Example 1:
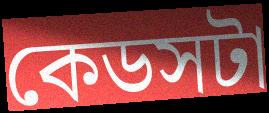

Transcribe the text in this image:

কেডসটা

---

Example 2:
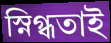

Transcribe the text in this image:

স্নিগ্ধতাই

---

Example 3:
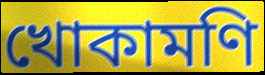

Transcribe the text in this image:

খোকামণি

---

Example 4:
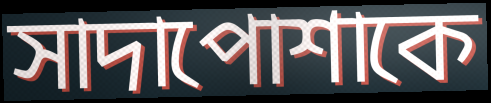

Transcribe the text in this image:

সাদাপোশাকে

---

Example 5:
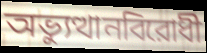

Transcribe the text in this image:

অভ্যুত্থানবিরোধী